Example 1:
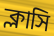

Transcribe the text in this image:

ক্লাসি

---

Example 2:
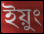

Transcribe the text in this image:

ইয়ুং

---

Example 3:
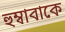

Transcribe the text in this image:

হুম্বাবাকে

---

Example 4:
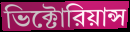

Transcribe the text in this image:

ভিক্টোরিয়ান্স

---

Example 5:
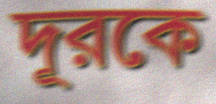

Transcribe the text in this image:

দূরকে